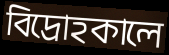
বিদ্রোহকালে